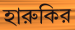
হারুকির